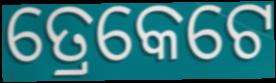
ତ୍ରେକେଟେ